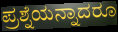
ಪ್ರಶ್ನೆಯನ್ನಾದರೂ